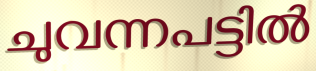
ചുവന്നപട്ടിൽ